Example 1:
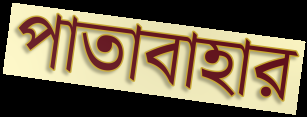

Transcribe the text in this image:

পাতাবাহার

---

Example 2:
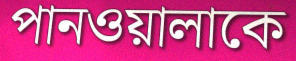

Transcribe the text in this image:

পানওয়ালাকে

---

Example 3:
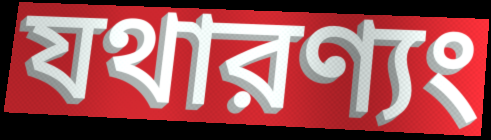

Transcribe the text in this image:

যথারণ্যং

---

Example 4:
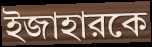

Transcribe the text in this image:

ইজাহারকে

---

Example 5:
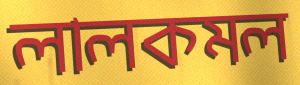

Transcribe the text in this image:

লালকমল